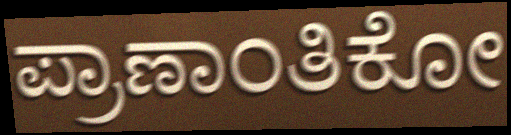
ಪ್ರಾಣಾಂತಿಕೋ